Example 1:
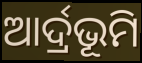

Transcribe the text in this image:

ଆର୍ଦ୍ରଭୂମି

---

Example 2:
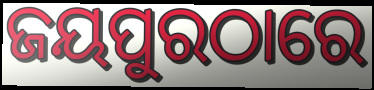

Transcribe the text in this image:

ଜୟପୁରଠାରେ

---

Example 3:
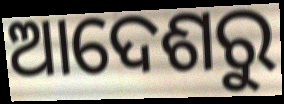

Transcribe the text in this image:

ଆଦେଶରୁ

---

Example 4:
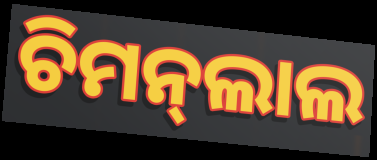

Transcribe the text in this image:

ଚିମନ୍‍ଲାଲ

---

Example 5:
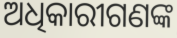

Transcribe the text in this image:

ଅଧିକାରୀଗଣଙ୍କ